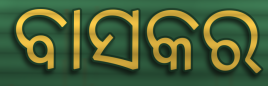
ବାସକର